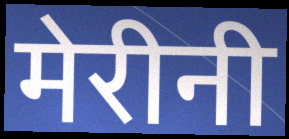
मेरीनी